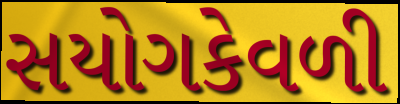
સયોગકેવળી